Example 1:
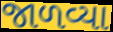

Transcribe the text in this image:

જાળવ્યા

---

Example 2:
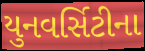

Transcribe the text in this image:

યુનવર્સિટીના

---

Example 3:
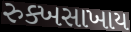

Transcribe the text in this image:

રુક્ખસાખાય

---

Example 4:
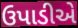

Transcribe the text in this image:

ઉપાડીએ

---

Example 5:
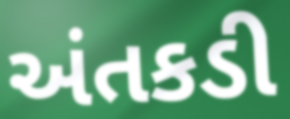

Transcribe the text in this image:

અંતકડી